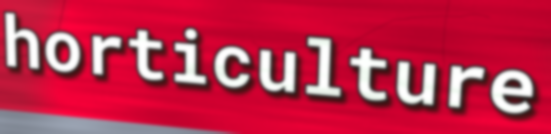
horticulture